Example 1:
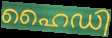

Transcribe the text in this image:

ഹൈഡി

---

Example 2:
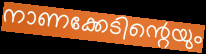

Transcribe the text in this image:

നാണക്കേടിന്റെയും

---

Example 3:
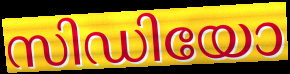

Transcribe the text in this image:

സിഡിയോ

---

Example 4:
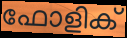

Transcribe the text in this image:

ഫോളിക്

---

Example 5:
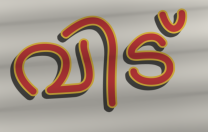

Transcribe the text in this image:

വിട്